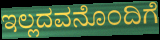
ಇಲ್ಲದವನೊಂದಿಗೆ